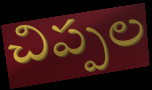
చిప్పల